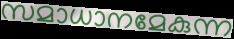
സമാധാനമേകുന്ന